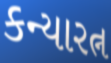
કન્યારત્ન